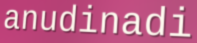
anudinadi